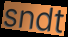
sndt